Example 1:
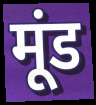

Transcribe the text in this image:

मूंड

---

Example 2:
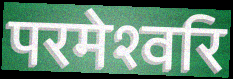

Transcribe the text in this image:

परमेश्वरि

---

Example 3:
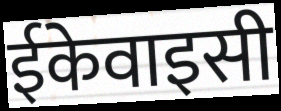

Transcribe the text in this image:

ईकेवाइसी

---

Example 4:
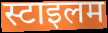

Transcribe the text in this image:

स्टाइलम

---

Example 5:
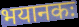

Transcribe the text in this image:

भयानकः